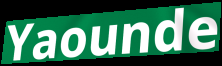
Yaounde